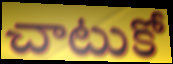
చాటుకో